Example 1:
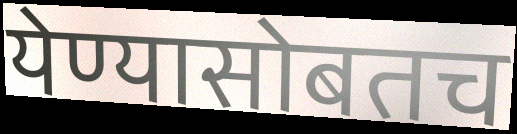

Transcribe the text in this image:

येण्यासोबतच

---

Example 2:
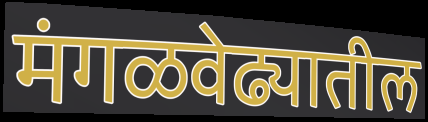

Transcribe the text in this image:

मंगळवेढ्यातील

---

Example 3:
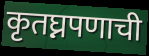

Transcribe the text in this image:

कृतघ्नपणाची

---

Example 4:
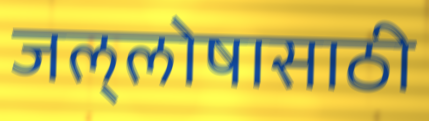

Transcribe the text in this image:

जल्लोषासाठी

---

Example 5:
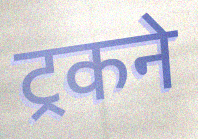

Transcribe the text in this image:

ट्रकने